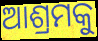
ଆଶ୍ରମକୁ